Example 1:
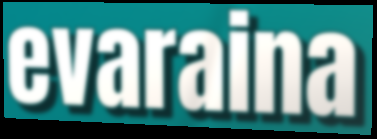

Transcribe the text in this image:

evaraina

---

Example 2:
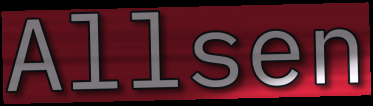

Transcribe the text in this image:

Allsen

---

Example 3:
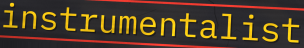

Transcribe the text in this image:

instrumentalist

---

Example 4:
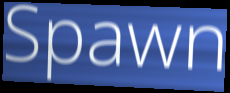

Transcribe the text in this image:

Spawn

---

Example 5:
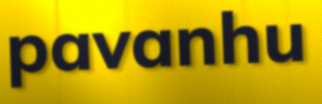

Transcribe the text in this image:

pavanhu